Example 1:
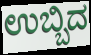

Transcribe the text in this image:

ಉಬ್ಬಿದ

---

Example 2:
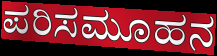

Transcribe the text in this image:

ಪರಿಸಮೂಹನ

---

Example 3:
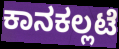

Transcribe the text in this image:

ಕಾನಕಲ್ಲಟೆ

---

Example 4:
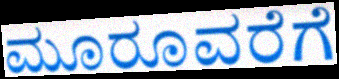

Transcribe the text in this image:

ಮೂರೂವರೆಗೆ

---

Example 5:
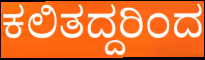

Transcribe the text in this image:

ಕಲಿತದ್ದರಿಂದ